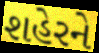
શહેરને